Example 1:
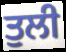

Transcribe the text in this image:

ਤੁਲੀ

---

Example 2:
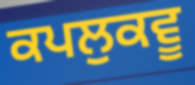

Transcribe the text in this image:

ਕਪਲੁਕਵੂ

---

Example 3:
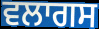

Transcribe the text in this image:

ਵਲਾਗਸ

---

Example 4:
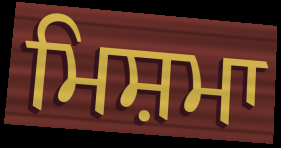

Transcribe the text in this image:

ਮਿਸ਼ਮਾ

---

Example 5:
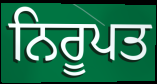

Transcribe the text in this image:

ਨਿਰੂਪਤ